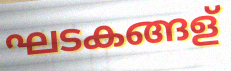
ഘടകങ്ങള്